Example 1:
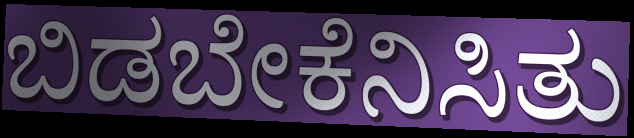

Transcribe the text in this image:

ಬಿಡಬೇಕೆನಿಸಿತು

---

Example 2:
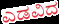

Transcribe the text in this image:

ಎಡವಿದ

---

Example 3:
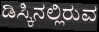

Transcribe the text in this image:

ಡಿಸ್ಕಿನಲ್ಲಿರುವ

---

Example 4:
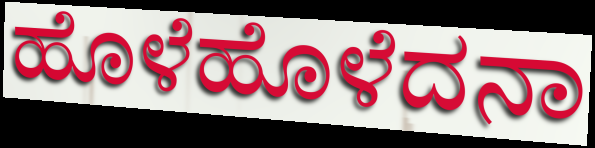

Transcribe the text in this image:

ಹೊಳೆಹೊಳೆದನಾ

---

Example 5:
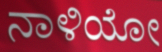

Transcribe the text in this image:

ನಾಳಿಯೋ